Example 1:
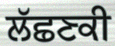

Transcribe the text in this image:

ਲੱਛਣਕੀ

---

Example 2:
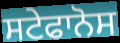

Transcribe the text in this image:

ਸਟੇਫਾਨੋਸ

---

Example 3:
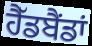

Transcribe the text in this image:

ਹੈੱਡਬੈਂਡਾਂ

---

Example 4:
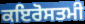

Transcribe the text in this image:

ਕਇਰੋਸਤਮੀ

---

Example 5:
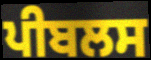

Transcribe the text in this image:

ਪੀਬਲਸ